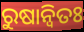
ରୁଷାନ୍ଵିତଃ